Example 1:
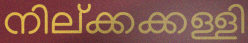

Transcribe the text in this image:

നില്ക്കക്കള്ളി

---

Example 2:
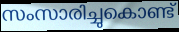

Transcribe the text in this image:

സംസാരിച്ചുകൊണ്ട്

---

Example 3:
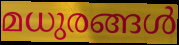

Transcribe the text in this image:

മധുരങ്ങൾ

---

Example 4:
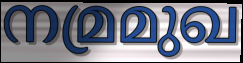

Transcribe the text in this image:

നമ്രമുഖ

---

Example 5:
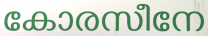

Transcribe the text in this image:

കോരസീനേ